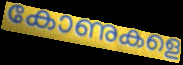
കോണുകളെ